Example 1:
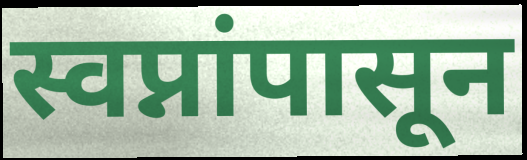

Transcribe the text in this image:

स्वप्नांपासून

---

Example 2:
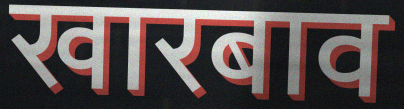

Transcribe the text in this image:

खारबाव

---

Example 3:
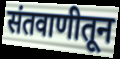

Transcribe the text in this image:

संतवाणीतून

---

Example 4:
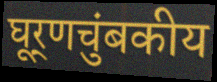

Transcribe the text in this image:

घूर्णचुंबकीय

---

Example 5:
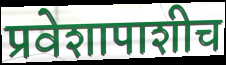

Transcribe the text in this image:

प्रवेशापाशीच